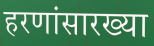
हरणांसारख्या